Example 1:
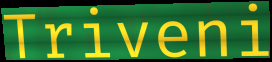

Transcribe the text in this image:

Triveni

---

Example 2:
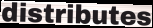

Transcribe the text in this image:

distributes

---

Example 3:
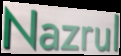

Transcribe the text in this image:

Nazrul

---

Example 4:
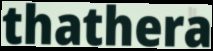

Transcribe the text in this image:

thathera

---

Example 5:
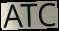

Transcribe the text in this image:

ATC